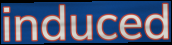
induced